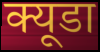
क्यूडा